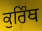
ਕੁਰਿੰਥ